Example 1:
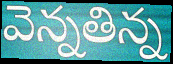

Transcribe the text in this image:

వెన్నతిన్న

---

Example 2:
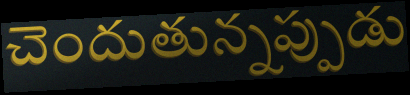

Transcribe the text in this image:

చెందుతున్నప్పుడు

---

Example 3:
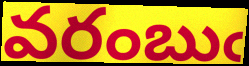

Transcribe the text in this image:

వరంబుఁ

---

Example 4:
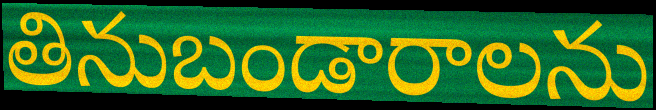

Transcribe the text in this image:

తినుబండారాలను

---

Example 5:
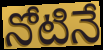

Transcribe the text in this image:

నోటినే